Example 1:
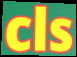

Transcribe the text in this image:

cls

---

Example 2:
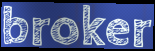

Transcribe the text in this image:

broker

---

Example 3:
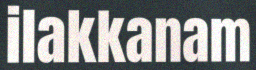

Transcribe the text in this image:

ilakkanam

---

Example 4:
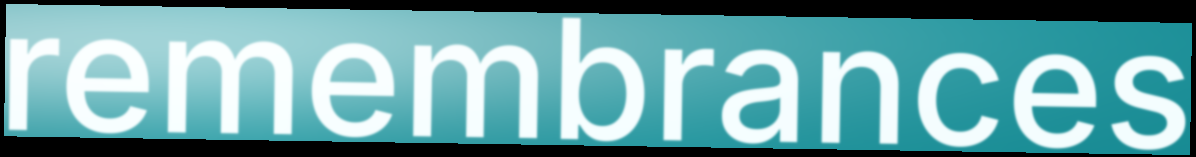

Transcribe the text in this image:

remembrances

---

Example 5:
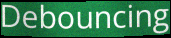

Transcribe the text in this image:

Debouncing